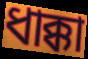
ধাক্কা